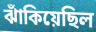
ঝাঁকিয়েছিল